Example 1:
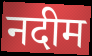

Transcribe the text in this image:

नदीम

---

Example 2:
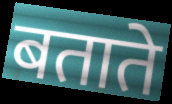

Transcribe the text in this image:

बताते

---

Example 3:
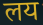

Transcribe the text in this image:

लय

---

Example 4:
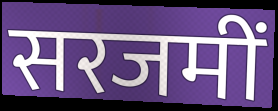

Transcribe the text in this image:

सरजमीं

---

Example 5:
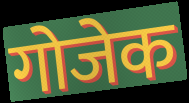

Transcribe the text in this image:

गोजेक